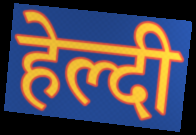
हेल्दी